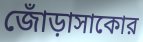
জোঁড়াসাকোর